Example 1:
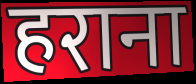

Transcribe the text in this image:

हराना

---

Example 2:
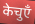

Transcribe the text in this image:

केचुएँ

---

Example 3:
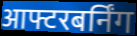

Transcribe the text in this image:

आफ्टरबर्निंग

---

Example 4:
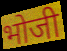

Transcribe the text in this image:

भोजी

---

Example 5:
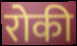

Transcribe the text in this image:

रोकी